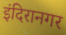
इंदिरानगर